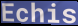
Echis